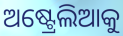
ଅଷ୍ଟ୍ରେଲିଆକୁ